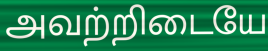
அவற்றிடையே